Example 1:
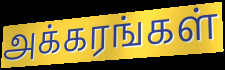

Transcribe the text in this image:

அக்கரங்கள்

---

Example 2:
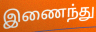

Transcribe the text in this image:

இணைந்து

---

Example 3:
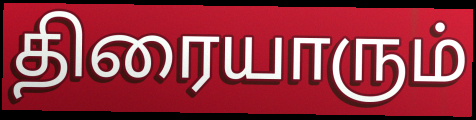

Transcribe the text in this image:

திரையாரும்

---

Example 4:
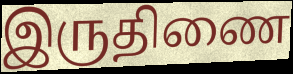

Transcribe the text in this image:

இருதிணை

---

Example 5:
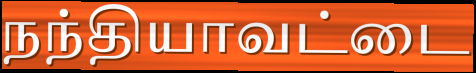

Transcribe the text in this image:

நந்தியாவட்டை